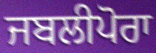
ਜਬਲੀਪੋਰਾ